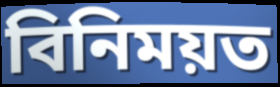
বিনিময়ত